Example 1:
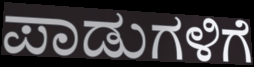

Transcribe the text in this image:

ಪಾಡುಗಳಿಗೆ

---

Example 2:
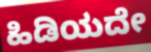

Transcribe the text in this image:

ಹಿಡಿಯದೇ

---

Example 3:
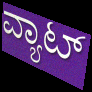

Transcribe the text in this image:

ವ್ಯಾಟ್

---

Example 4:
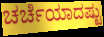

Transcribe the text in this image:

ಚರ್ಚೆಯಾದಷ್ಟು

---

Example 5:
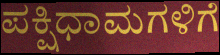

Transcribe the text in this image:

ಪಕ್ಷಿಧಾಮಗಳಿಗೆ